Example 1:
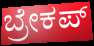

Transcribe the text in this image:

ಬ್ರೇಕಪ್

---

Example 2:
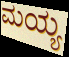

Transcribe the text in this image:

ಮಯ್ಯ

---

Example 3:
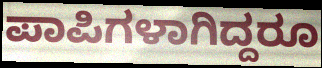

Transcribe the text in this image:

ಪಾಪಿಗಳಾಗಿದ್ದರೂ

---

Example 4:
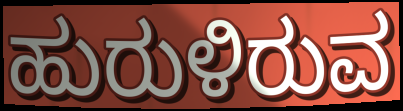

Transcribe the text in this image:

ಹುರುಳಿರುವ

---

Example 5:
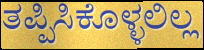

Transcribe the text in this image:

ತಪ್ಪಿಸಿಕೊಳ್ಳಲಿಲ್ಲ